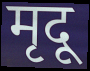
मृदू